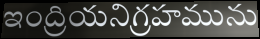
ఇంద్రియనిగ్రహమును